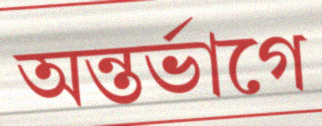
অন্তর্ভাগে